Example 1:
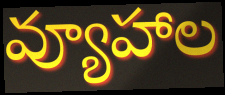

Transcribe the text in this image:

వ్యూహాల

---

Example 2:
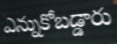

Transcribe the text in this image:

ఎన్నుకోబడ్డారు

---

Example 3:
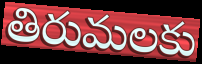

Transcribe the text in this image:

తిరుమలకు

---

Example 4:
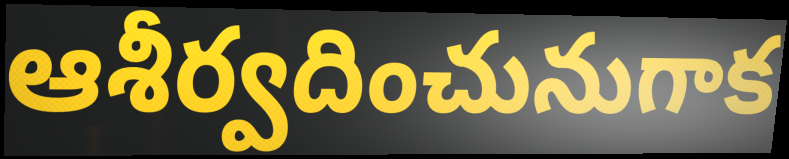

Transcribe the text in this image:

ఆశీర్వదించునుగాక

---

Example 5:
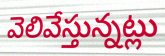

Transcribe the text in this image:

వెలివేస్తున్నట్లు